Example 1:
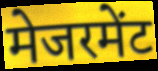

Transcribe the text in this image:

मेजरमेंट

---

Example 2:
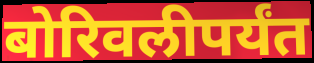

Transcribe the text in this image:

बोरिवलीपर्यंत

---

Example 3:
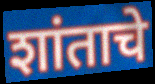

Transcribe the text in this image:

शांताचे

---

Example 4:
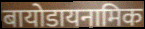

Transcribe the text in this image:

बायोडायनामिक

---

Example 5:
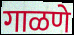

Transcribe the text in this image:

गाळणे